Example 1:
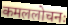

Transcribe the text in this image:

कमललोचनः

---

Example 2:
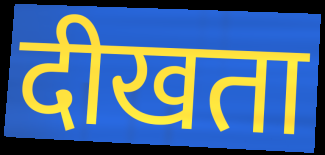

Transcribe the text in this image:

दीखता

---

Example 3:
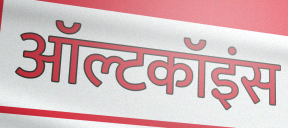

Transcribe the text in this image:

ऑल्टकॉइंस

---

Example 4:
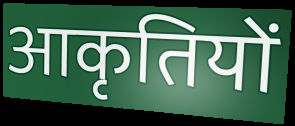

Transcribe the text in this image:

आकृतियों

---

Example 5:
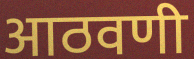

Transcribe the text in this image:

आठवणी